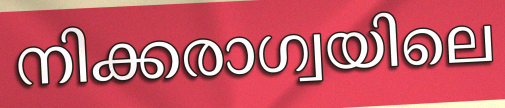
നിക്കരാഗ്വയിലെ